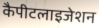
कैपीटलाइजेशन